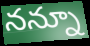
నన్నూ